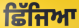
ਛਿੱਜਿਆ